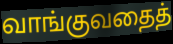
வாங்குவதைத்